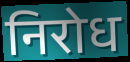
निरोध